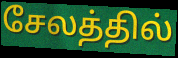
சேலத்தில்